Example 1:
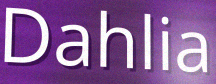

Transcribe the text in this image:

Dahlia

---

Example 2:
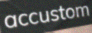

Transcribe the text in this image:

accustom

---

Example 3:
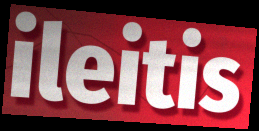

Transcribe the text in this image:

ileitis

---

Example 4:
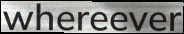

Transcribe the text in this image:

whereever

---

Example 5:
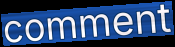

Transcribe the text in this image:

comment